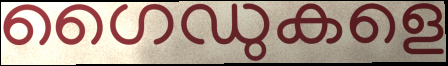
ഗൈഡുകളെ